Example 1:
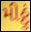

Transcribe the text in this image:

મીઠ્ઠું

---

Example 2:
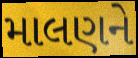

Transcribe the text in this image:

માલણને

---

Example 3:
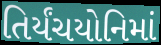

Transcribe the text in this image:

તિર્યંચયોનિમાં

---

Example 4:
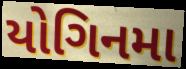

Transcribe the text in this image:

યોગિનમા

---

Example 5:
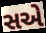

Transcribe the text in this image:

સએ